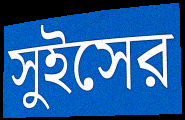
সুইসের